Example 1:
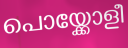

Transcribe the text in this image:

പൊയ്ക്കോളീ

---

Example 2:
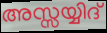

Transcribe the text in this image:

അസ്സയ്യിദ്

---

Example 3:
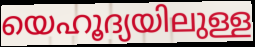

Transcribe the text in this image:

യെഹൂദ്യയിലുള്ള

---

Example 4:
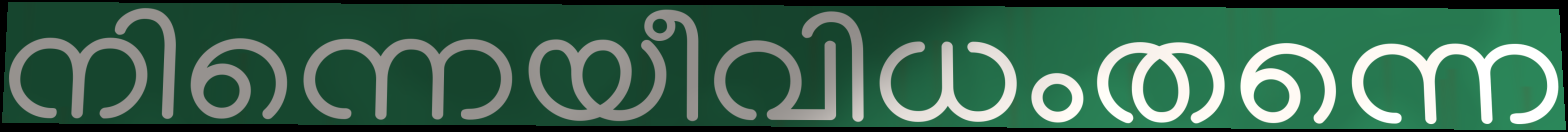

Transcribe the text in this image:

നിന്നെയീവിധംതന്നെ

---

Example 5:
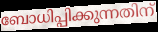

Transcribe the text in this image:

ബോധിപ്പിക്കുന്നതിന്